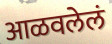
आळवलेलं